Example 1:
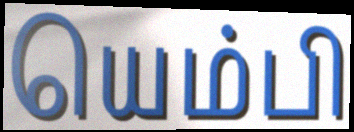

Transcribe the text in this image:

யெம்பி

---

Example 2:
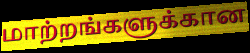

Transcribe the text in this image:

மாற்றங்களுக்கான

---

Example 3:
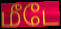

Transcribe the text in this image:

மீடே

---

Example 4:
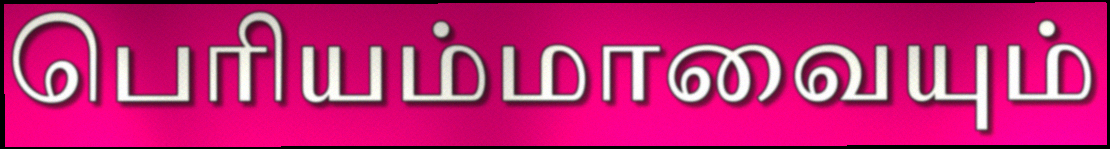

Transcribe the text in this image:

பெரியம்மாவையும்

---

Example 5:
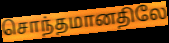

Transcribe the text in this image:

சொந்தமானதிலே